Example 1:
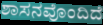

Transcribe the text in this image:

ಶಾಸನವೊಂದಿದೆ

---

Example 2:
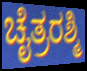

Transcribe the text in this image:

ಚೈತ್ರರಶ್ಮಿ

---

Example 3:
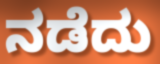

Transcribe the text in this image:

ನಡೆದು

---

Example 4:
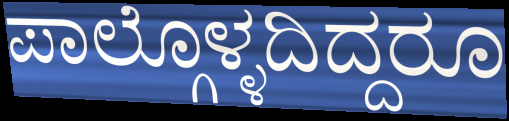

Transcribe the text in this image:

ಪಾಲ್ಗೊಳ್ಳದಿದ್ದರೂ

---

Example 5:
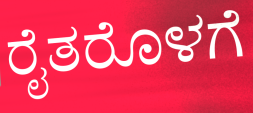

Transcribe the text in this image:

ರೈತರೊಳಗೆ